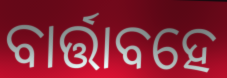
ବାର୍ତ୍ତାବହେ